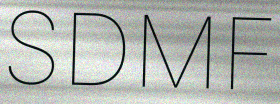
SDMF